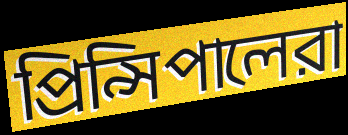
প্রিন্সিপালেরা